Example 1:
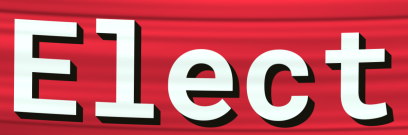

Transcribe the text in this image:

Elect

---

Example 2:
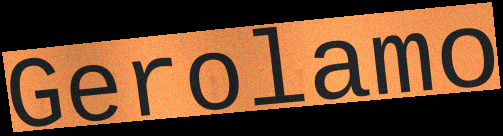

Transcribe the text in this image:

Gerolamo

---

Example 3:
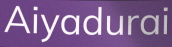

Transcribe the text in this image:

Aiyadurai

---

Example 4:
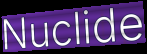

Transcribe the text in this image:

Nuclide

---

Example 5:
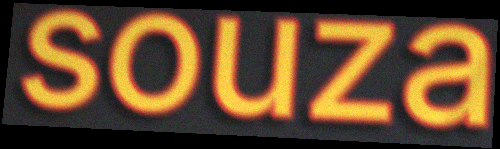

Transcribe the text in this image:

souza